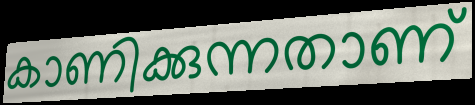
കാണിക്കുന്നതാണ്